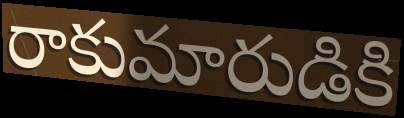
రాకుమారుడికి